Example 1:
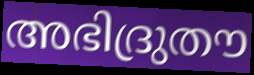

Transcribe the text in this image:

അഭിദ്രുതൗ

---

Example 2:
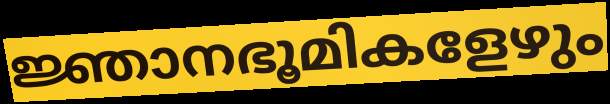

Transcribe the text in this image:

ജ്ഞാനഭൂമികളേഴും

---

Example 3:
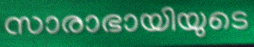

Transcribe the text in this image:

സാരാഭായിയുടെ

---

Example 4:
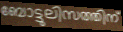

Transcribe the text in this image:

ബോട്ടുലിസത്തിന്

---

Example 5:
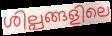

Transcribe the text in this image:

ശില്പങ്ങളിലെ